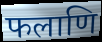
फलाणि